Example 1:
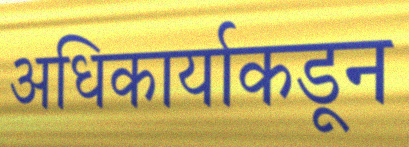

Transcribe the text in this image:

अधिकार्याकडून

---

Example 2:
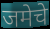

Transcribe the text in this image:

जमेचे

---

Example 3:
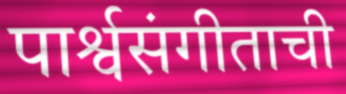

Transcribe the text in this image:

पार्श्वसंगीताची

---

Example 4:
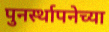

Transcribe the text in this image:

पुनर्स्थापनेच्या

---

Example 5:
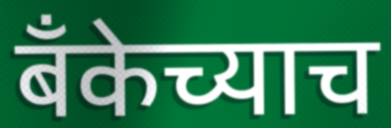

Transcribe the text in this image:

बँकेच्याच